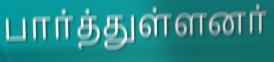
பார்த்துள்ளனர்